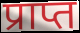
प्राप्‍त